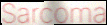
Sarcoma